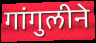
गांगुलीने